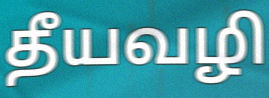
தீயவழி